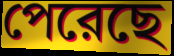
পেরেছে